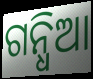
ଗନ୍ଧିଆ